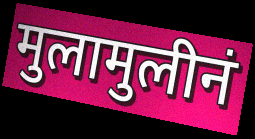
मुलामुलीनं